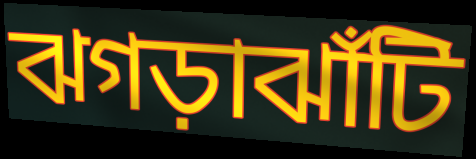
ঝগড়াঝাঁটি